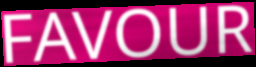
FAVOUR